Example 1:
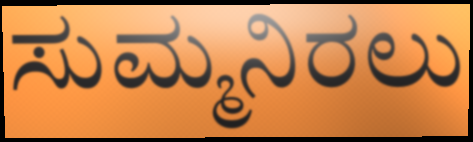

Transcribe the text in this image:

ಸುಮ್ಮನಿರಲು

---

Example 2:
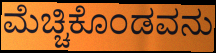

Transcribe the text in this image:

ಮೆಚ್ಚಿಕೊಂಡವನು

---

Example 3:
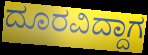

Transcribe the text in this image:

ದೂರವಿದ್ದಾಗ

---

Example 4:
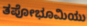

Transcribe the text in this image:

ತಪೋಭೂಮಿಯು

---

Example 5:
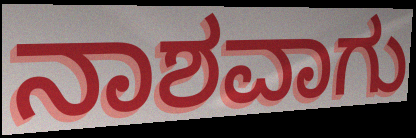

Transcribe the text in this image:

ನಾಶವಾಗು